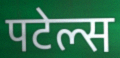
पटेल्स